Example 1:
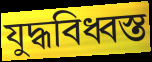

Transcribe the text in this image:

যুদ্ধবিধ্বস্ত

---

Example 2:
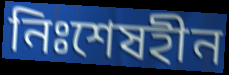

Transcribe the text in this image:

নিঃশেষহীন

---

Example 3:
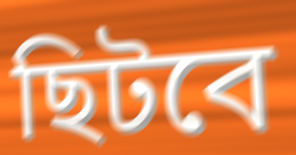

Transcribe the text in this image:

ছিটবে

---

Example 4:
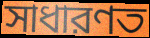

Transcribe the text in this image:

সাধারণত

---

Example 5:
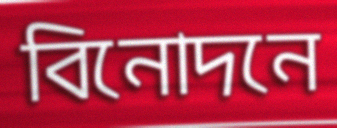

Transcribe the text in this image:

বিনোদনে